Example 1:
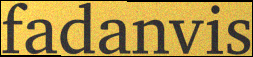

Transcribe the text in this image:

fadanvis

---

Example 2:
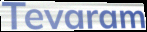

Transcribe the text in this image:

Tevaram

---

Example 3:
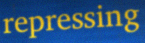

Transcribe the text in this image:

repressing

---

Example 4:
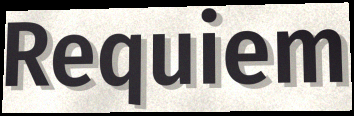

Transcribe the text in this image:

Requiem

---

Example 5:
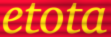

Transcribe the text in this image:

etota